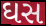
ઘસ